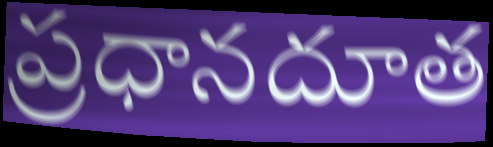
ప్రధానదూత